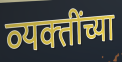
व्‍यक्‍तींच्‍या